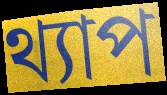
থ্যাপ